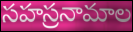
సహస్రనామాల